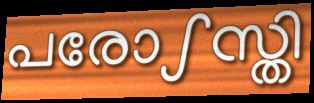
പരോഽസ്തി